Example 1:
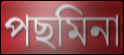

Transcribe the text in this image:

পছমিনা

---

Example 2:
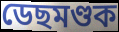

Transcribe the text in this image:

ডেছমণ্ডক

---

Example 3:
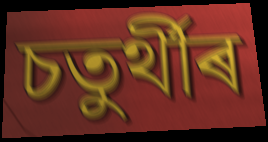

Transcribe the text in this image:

চতুৰ্থীৰ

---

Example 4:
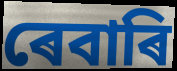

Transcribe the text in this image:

ৰেবাৰি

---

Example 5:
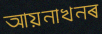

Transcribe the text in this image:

আয়নাখনৰ